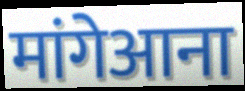
मांगेआना